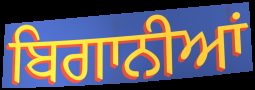
ਬਿਗਾਨੀਆਂ